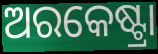
ଅରକେଷ୍ଟ୍ରା